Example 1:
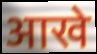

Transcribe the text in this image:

आखे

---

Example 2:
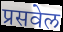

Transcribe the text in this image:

प्रसवेल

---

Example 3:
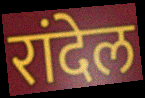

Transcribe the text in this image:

रांदेल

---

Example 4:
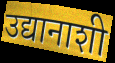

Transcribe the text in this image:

उद्यानाशी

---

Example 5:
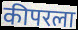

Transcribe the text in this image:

कीपरला